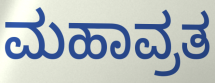
ಮಹಾವ್ರತ